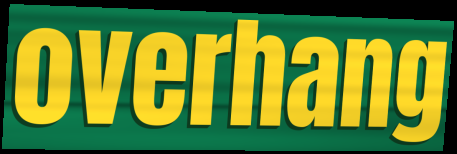
overhang